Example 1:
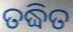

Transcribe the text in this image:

ତଦ୍ଧିତ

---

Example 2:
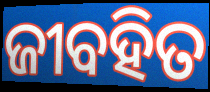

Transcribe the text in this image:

ଜୀବହିତ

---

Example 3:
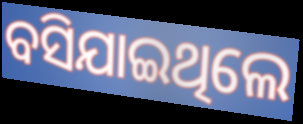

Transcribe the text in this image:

ବସିଯାଇଥିଲେ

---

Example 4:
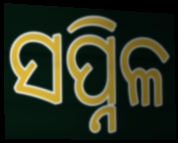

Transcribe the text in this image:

ସପ୍ନିଳ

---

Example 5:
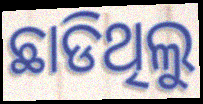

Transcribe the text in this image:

ଛାଡିଥିଲୁ